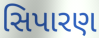
સિપારણ